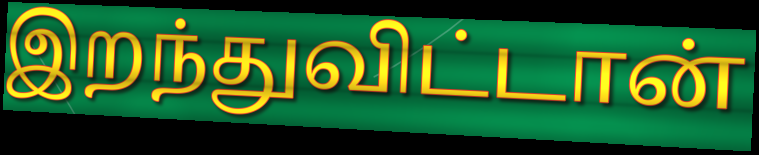
இறந்துவிட்டான்